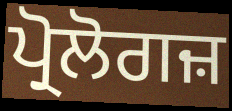
ਪ੍ਰੋਲੋਗਜ਼